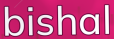
bishal